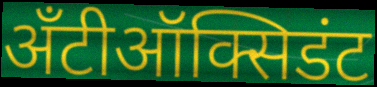
अँटीऑक्सिडंट